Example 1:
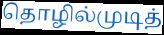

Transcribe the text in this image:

தொழில்முடித்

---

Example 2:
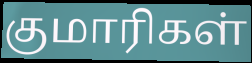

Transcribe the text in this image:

குமாரிகள்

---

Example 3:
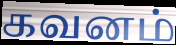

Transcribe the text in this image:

கவனம்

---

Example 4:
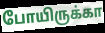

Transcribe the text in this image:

போயிருக்கா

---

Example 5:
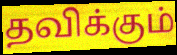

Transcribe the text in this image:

தவிக்கும்